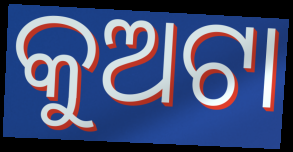
କୁଅଟା